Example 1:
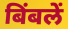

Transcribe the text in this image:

बिंबलें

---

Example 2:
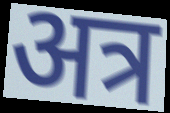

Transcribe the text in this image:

अत्र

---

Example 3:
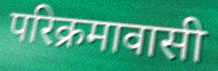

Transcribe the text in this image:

परिक्रमावासी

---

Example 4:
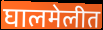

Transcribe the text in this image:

घालमेलीत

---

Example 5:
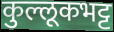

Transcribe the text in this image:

कुल्लूकभट्ट